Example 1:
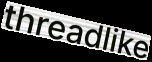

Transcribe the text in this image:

threadlike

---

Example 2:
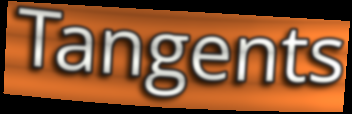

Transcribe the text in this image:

Tangents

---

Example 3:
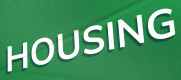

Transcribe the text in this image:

HOUSING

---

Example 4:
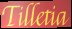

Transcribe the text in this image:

Tilletia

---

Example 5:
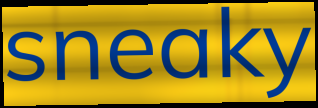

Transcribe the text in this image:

sneaky